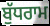
ਬੁੱਧਰਾਮ